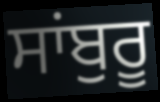
ਸਾਂਬੁਰੂ